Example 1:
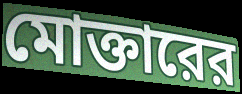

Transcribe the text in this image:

মোক্তারের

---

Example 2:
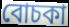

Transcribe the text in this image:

বোচকা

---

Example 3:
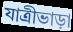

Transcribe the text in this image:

যাত্রীভাড়া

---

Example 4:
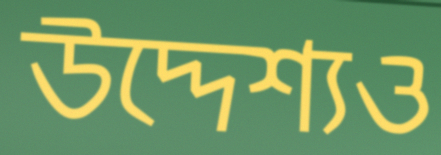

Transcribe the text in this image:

উদ্দেশ্যও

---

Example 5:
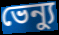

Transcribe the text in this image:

ভেন্যু